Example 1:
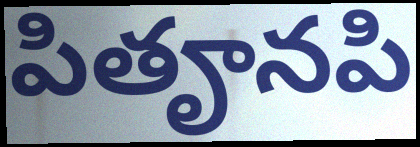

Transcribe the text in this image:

పితౄనపి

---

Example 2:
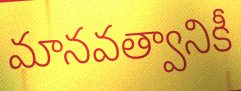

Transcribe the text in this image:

మానవత్వానికీ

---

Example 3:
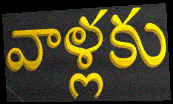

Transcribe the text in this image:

వాళ్లకు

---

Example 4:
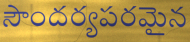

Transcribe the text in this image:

సౌందర్యపరమైన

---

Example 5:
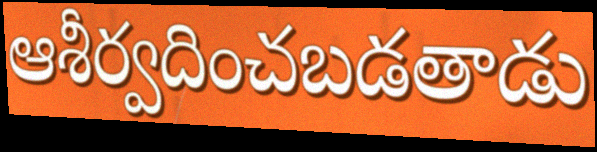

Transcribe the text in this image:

ఆశీర్వదించబడతాడు